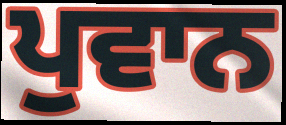
ਪੁਵਾਨ